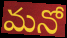
మనో